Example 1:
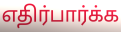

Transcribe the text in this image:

எதிர்பார்க்க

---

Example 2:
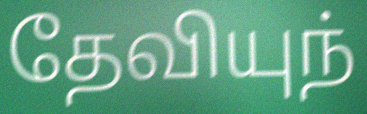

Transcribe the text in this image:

தேவியுந்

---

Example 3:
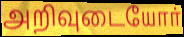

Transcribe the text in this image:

அறிவுடையோர்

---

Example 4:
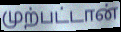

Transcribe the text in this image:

முற்பட்டான்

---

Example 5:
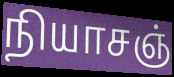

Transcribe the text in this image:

நியாசஞ்